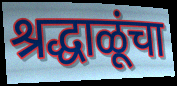
श्रद्धाळूंचा